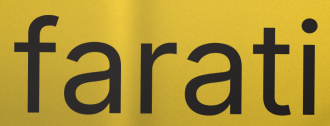
farati